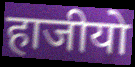
हाजीयो